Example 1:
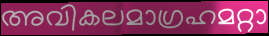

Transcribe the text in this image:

അവികലമാഗ്രഹമറ്റാ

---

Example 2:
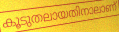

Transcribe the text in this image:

കൂടുതലായതിനാലാണ്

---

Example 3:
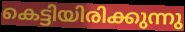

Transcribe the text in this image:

കെട്ടിയിരിക്കുന്നു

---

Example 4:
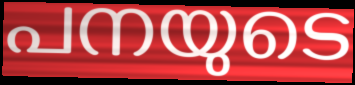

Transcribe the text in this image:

പനയുടെ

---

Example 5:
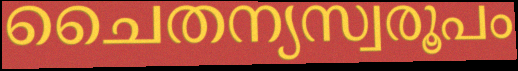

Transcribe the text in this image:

ചൈതന്യസ്വരൂപം